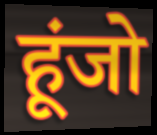
हूंजो